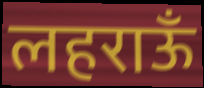
लहराऊँ